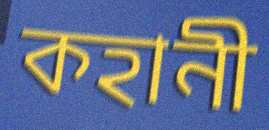
কহানী